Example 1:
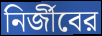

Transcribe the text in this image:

নির্জীবের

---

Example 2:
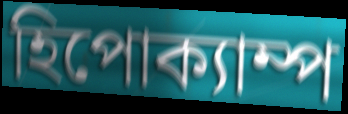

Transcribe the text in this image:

হিপোক্যাম্প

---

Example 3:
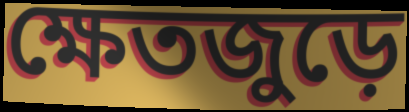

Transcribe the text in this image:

ক্ষেতজুড়ে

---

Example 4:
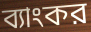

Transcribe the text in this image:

ব্যাংকর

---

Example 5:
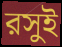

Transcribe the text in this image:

রসুই